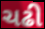
ચઢી